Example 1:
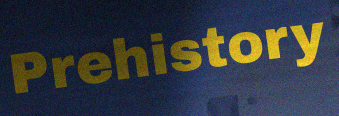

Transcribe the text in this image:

Prehistory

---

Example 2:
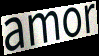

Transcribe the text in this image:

amor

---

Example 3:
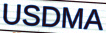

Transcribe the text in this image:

USDMA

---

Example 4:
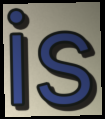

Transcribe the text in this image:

is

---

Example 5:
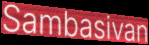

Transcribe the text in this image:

Sambasivan